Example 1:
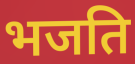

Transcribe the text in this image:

भजति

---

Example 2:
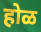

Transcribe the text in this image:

होळ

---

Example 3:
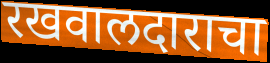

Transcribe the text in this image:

रखवालदाराचा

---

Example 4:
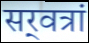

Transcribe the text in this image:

सर्वत्रां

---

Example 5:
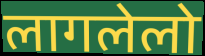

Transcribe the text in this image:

लागलेलो